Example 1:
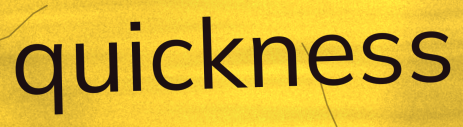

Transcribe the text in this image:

quickness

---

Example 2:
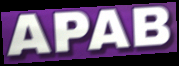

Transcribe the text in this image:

APAB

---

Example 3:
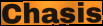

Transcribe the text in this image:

Chasis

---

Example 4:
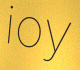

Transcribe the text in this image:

ioy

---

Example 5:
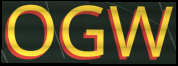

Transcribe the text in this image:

OGW